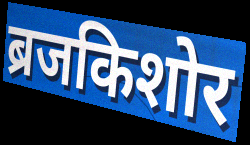
ब्रजकिशोर